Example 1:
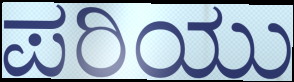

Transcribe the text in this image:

ಪರಿಯು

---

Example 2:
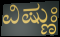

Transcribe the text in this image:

ವಿಷ್ಣುಃ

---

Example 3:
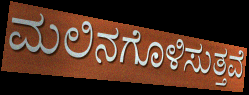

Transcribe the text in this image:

ಮಲಿನಗೊಳಿಸುತ್ತವೆ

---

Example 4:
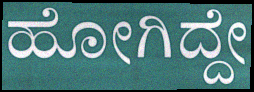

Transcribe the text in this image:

ಹೋಗಿದ್ದೇ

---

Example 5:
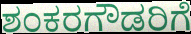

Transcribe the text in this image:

ಶಂಕರಗೌಡರಿಗೆ